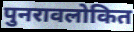
पुनरावलोकित